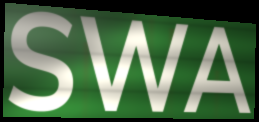
SWA